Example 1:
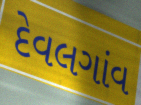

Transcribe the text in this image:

દેવલગાંવ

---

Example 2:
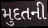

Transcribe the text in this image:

મુદતની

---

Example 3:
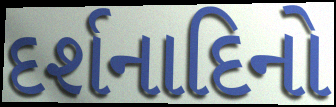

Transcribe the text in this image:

દર્શનાદિનો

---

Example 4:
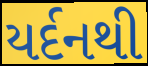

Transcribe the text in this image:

યર્દનથી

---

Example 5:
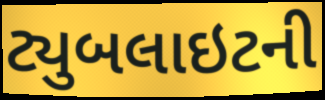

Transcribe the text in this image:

ટ્યુબલાઇટની